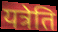
यत्रेति